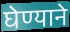
घेण्याने